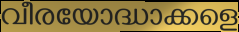
വീരയോദ്ധാക്കളെ